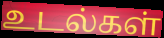
உடல்கள்